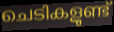
ചെടികളുണ്ട്